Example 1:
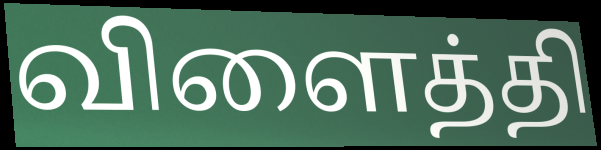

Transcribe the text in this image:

விளைத்தி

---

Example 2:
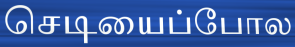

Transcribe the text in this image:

செடியைப்போல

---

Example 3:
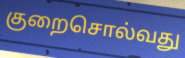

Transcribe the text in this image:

குறைசொல்வது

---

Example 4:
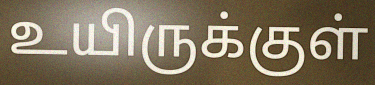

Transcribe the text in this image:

உயிருக்குள்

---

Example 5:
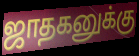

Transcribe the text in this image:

ஜாதகனுக்கு